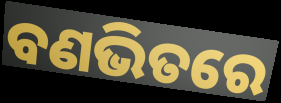
ବଣଭିତରେ